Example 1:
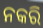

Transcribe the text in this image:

ନକରି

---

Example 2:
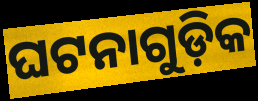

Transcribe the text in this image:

ଘଟନାଗୁଡ଼ିକ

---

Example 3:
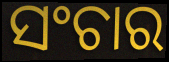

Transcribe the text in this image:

ସଂଚାର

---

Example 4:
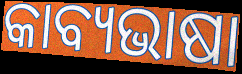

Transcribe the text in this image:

କାବ୍ୟଭାଷା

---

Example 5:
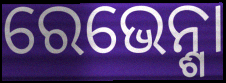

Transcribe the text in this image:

ରେଭେନ୍ଶା